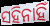
ସହିନାହିଁ